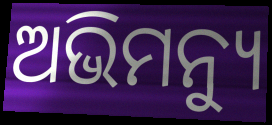
ଅଭିମନ୍ଯୁ